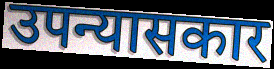
उपन्यासकार